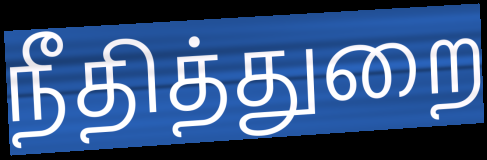
நீதித்துறை